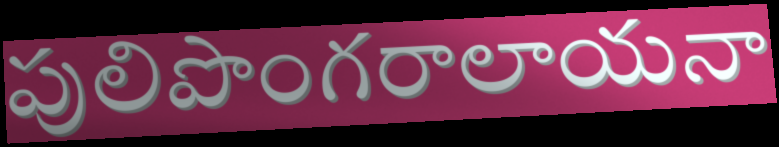
పులిపొంగరాలాయనా